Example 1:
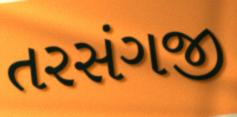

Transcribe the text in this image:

તરસંગજી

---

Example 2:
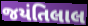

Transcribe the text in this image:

જયંતિલાલ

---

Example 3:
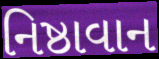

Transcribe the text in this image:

નિષ્ઠાવાન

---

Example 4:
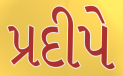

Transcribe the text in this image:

પ્રદીપે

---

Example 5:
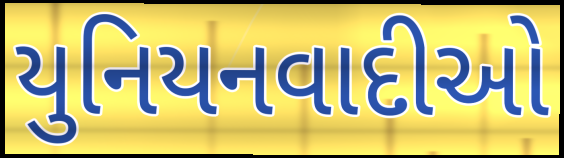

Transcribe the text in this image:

યુનિયનવાદીઓ